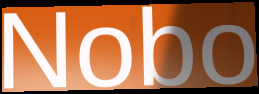
Nobo